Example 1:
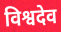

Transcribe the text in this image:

विश्वदेव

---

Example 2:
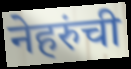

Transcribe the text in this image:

नेहरुंची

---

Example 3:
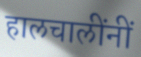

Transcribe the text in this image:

हालचालींनीं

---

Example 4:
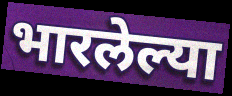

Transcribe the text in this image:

भारलेल्या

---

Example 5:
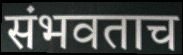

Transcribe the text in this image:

संभवताच